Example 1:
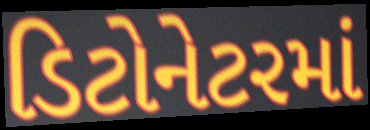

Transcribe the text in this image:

ડિટોનેટરમાં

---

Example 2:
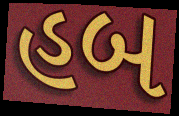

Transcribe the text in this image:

હબ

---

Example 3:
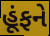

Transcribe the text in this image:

હૂંફને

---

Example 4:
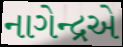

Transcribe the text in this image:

નાગેન્દ્રએ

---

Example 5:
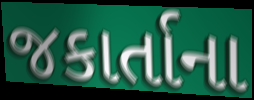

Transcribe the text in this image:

જકાર્તાના